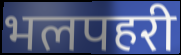
भलपहरी